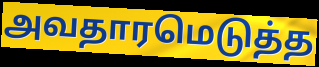
அவதாரமெடுத்த